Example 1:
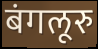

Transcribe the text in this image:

बंगलूरु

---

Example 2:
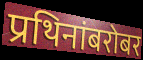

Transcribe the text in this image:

प्रथिनांबरोबर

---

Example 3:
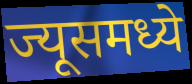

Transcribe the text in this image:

ज्यूसमध्ये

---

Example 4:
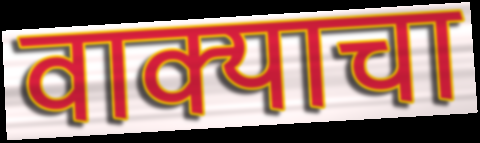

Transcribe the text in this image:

वाक्याचा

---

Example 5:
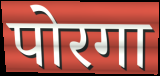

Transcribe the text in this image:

पोरगा